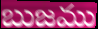
బుజము